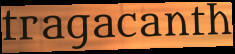
tragacanth